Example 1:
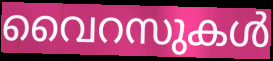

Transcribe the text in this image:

വൈറസുകൾ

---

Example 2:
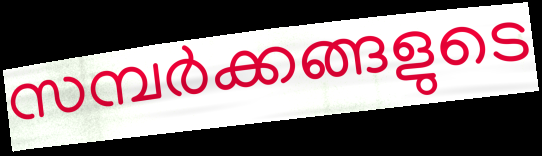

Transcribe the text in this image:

സമ്പർക്കങ്ങളുടെ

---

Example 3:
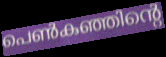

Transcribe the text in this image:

പെൺകുഞ്ഞിന്റെ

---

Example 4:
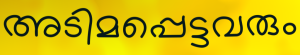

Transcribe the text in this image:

അടിമപ്പെട്ടവരും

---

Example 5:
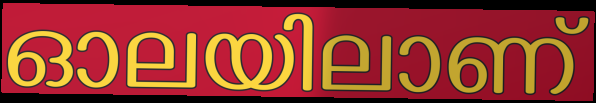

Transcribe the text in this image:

ഓലയിലാണ്